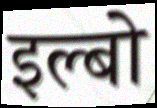
इल्बो